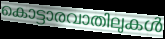
കൊട്ടാരവാതിലുകൾ